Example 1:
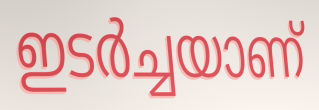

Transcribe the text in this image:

ഇടർച്ചയാണ്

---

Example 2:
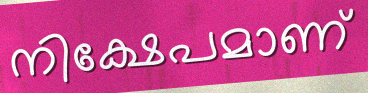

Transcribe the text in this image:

നിക്ഷേപമാണ്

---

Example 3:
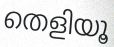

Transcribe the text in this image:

തെളിയൂ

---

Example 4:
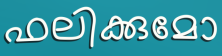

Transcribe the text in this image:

ഫലിക്കുമോ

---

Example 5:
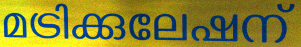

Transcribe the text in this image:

മട്രിക്കുലേഷന്